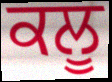
ਕਲੂ